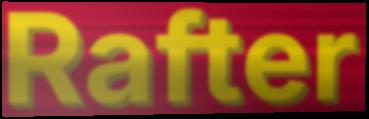
Rafter